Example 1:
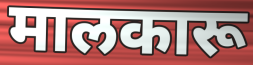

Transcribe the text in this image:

मालकारू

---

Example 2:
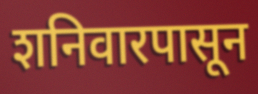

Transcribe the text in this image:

शनिवारपासून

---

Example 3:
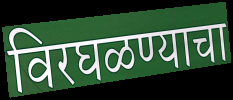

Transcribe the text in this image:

विरघळण्याचा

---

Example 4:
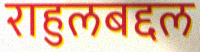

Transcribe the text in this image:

राहुलबद्दल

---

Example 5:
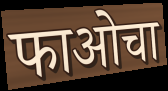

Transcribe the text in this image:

फाओचा